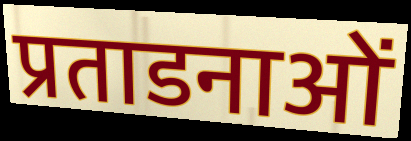
प्रताडनाओं